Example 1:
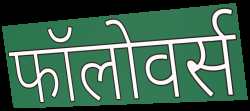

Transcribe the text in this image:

फॉलोवर्स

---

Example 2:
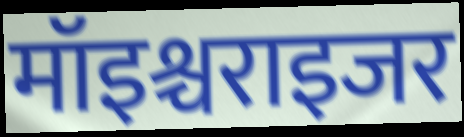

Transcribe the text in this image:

मॉइश्चराइजर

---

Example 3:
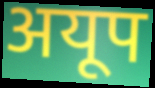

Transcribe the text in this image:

अयूप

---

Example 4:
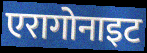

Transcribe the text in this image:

एरागोनाइट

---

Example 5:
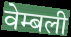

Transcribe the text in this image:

वेम्बली